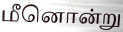
மீனொன்று